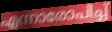
എന്നാരോപിച്ച്